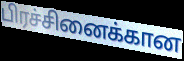
பிரச்சினைக்கான